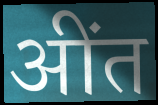
अींत